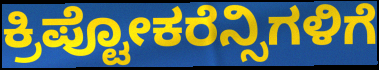
ಕ್ರಿಪ್ಟೋಕರೆನ್ಸಿಗಳಿಗೆ